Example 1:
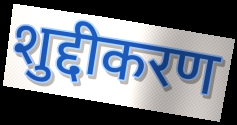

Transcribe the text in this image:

शुद्दीकरण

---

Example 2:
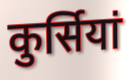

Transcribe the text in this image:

कुर्सियां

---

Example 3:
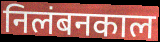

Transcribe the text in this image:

निलंबनकाल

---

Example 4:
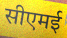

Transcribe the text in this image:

सीएमई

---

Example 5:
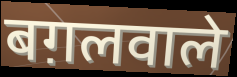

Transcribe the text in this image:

बग़लवाले